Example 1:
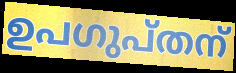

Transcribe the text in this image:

ഉപഗുപ്തന്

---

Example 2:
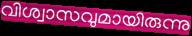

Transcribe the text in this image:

വിശ്വാസവുമായിരുന്നു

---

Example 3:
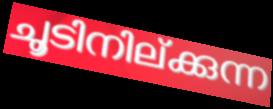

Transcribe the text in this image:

ചൂടിനില്ക്കുന്ന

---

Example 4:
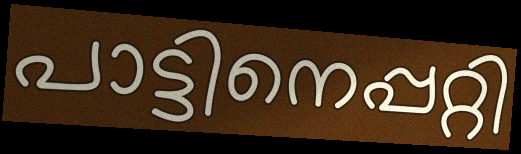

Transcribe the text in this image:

പാട്ടിനെപ്പറ്റി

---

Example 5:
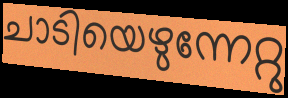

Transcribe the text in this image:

ചാടിയെഴുന്നേറ്റു